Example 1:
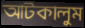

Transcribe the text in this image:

আটকালুম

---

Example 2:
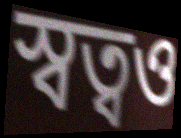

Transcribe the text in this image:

স্বত্বও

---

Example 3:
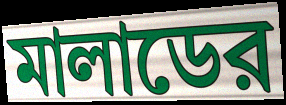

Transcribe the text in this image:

মালাডের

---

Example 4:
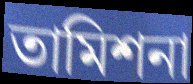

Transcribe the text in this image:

তামিশনা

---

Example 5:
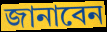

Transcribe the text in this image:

জানাবেন